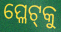
ପ୍ଳେଟ୍‌କୁ